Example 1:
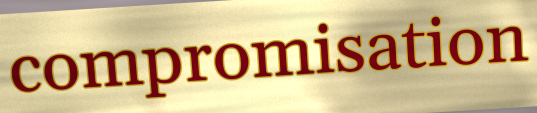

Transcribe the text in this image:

compromisation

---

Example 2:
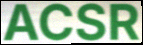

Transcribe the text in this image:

ACSR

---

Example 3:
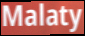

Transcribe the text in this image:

Malaty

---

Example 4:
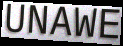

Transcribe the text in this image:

UNAWE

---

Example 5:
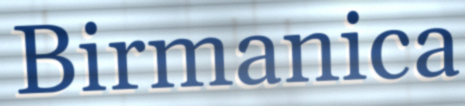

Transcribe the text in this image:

Birmanica